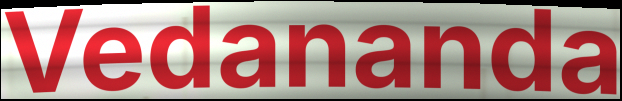
Vedananda